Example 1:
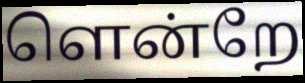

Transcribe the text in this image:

ளென்றே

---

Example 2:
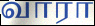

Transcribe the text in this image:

வாரா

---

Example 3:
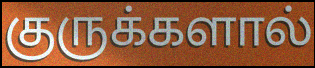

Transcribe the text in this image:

குருக்களால்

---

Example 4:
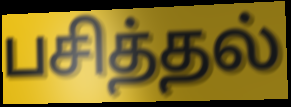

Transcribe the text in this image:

பசித்தல்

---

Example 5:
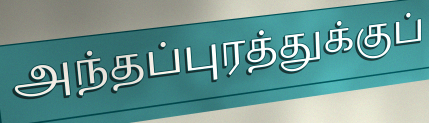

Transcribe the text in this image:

அந்தப்புரத்துக்குப்